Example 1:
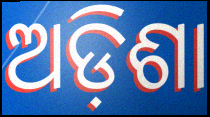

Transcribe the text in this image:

ଅଡ଼ିଶା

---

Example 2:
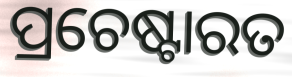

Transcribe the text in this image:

ପ୍ରଚେଷ୍ଟାରତ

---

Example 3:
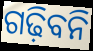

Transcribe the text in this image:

ଗଢ଼ିବନି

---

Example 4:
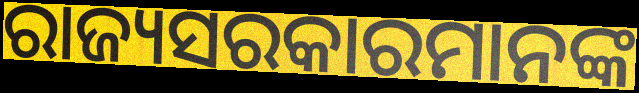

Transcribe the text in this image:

ରାଜ୍ୟସରକାରମାନଙ୍କ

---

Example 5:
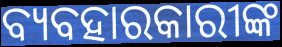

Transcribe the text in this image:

ବ୍ୟବହାରକାରୀଙ୍କ